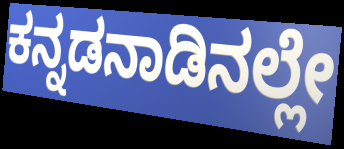
ಕನ್ನಡನಾಡಿನಲ್ಲೇ